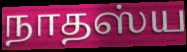
நாதஸ்ய